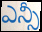
ఎన్సీ